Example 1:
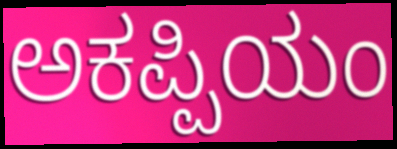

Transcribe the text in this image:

ಅಕಪ್ಪಿಯಂ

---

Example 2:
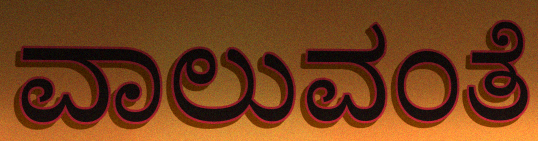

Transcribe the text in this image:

ವಾಲುವಂತೆ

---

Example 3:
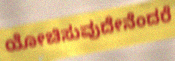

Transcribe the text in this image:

ಯೋಚಿಸುವುದೇನೆಂದರೆ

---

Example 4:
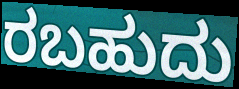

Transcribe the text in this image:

ರಬಹುದು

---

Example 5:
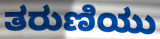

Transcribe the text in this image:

ತರುಣಿಯು